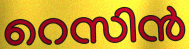
റെസിൻ